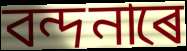
বন্দনাৰে